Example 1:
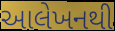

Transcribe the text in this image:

આલેખનથી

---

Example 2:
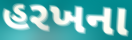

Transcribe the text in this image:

હરખના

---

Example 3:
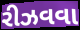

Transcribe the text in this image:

રીઝવવા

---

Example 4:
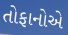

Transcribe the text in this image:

તોફાનોએ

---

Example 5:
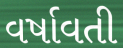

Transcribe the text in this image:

વર્ષાવતી